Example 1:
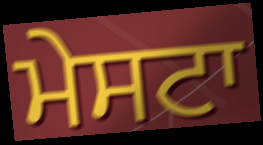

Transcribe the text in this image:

ਮੇਸਟਾ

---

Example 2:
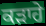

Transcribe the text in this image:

ਕੜਾਹੇ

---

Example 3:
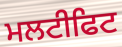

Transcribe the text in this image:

ਮਲਟੀਫਿਟ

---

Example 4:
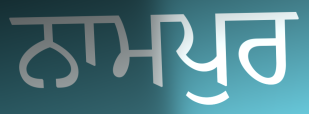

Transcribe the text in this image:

ਨਾਮਪੁਰ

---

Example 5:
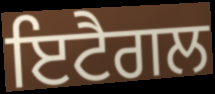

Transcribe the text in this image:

ਇਟੈਗਲ